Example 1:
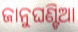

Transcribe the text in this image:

ଜାନୁଘଣ୍ଟିଆ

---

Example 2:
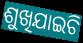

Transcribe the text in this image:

ଶୁଖିଯାଇଚି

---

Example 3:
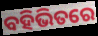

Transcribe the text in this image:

ବହିଭିତରେ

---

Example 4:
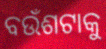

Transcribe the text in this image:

ବଉଁଶଟାକୁ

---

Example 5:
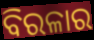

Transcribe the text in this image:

ବିରଳାର